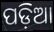
ପଡ଼ିଆ